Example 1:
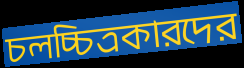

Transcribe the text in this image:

চলচ্চিত্রকারদের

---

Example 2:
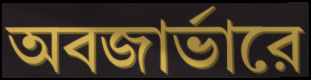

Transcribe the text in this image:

অবজার্ভারে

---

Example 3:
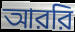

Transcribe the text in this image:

আররি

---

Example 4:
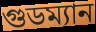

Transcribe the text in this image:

গুডম্যান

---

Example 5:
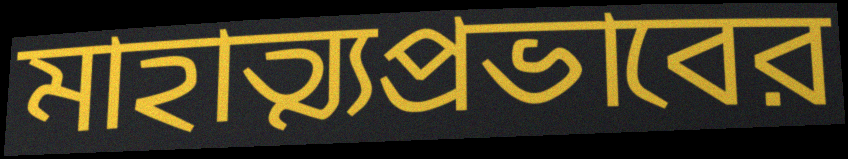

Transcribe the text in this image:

মাহাত্ম্যপ্রভাবের